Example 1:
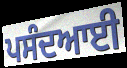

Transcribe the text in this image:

ਪਸੰਦਆਈ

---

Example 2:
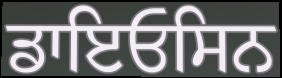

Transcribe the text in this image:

ਡਾਇਓਸਿਨ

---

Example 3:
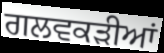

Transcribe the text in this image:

ਗਲਵਕੜੀਆਂ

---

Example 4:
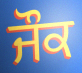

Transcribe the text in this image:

ਜੌਕ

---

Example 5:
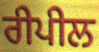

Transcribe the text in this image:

ਰੀਪੀਲ